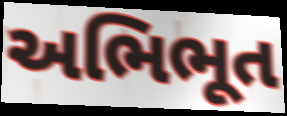
અભિભૂત